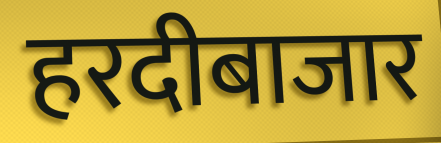
हरदीबाजार